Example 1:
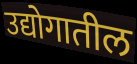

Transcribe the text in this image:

उद्योगातील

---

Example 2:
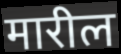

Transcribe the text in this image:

मारील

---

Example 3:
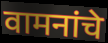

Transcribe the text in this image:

वामनांचे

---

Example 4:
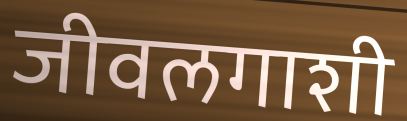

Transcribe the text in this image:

जीवलगाशी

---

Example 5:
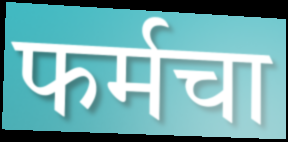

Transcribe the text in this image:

फर्मचा